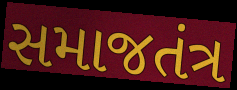
સમાજતંત્ર